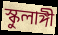
স্কুলাঙ্গী